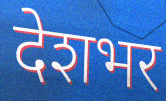
देशभर